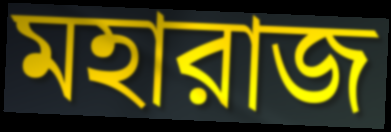
মহারাজ